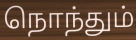
நொந்தும்